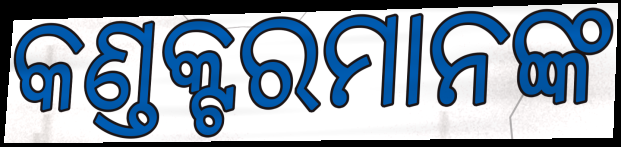
କଣ୍ଡକ୍ଟରମାନଙ୍କ